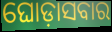
ଘୋଡ଼ାସବାର